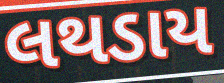
લથડાય